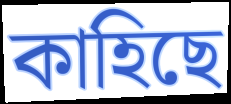
কাহিছে